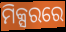
ମିକ୍ସରରେ